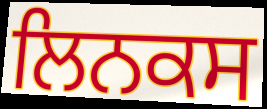
ਲਿਨਕਸ